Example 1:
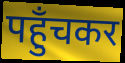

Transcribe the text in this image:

पहुँचकर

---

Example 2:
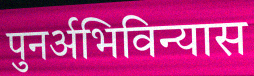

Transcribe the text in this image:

पुनर्अभिविन्यास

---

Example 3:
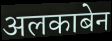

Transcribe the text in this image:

अलकाबेन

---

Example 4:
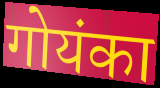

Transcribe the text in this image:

गोयंका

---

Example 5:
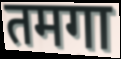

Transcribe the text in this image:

तमगा